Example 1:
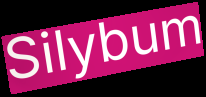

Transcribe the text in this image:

Silybum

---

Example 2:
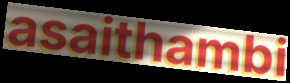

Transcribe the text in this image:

asaithambi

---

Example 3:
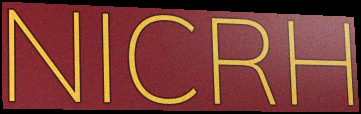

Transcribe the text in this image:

NICRH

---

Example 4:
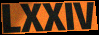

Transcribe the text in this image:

LXXIV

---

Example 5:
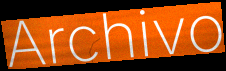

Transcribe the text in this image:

Archivo